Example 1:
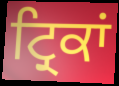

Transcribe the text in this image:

ਟ੍ਰਿਕਾਂ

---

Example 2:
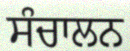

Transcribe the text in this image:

ਸੰਚਾਲਨ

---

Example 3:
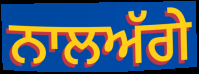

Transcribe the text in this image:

ਨਾਲਅੱਗੇ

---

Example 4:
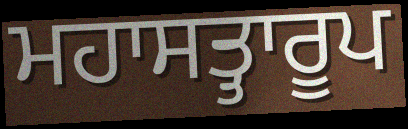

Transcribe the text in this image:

ਮਹਾਸਤ੍ਤਾਰੂਪ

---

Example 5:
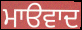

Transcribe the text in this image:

ਮਾੳਵਾਦ